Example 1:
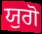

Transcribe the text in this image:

ਯੁਗੋ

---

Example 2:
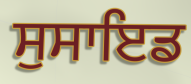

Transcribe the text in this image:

ਸੁਸਾਇਡ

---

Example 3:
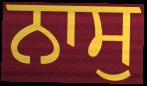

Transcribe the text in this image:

ਨਾਸੁ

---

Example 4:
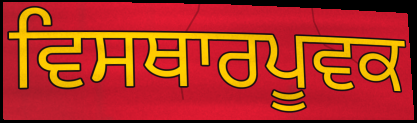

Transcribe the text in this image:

ਵਿਸਥਾਰਪੂਵਕ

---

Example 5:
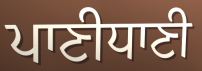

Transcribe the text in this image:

ਪਾਣੀਧਾਣੀ